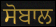
ਸੋਬਾਲ